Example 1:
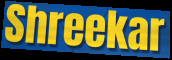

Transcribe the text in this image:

Shreekar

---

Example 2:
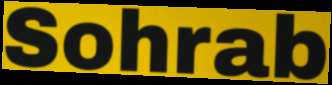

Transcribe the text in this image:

Sohrab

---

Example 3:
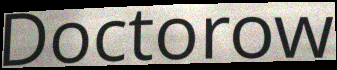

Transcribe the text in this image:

Doctorow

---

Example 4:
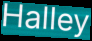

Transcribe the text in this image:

Halley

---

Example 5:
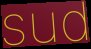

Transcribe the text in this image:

sud